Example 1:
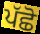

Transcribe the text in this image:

ਪੱਛੋ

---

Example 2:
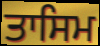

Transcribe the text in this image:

ਤਾਸਿਮ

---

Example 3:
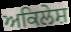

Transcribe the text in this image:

ਅਕਿਲੇਸ਼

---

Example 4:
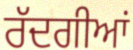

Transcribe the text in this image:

ਰੱਦਗੀਆਂ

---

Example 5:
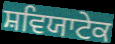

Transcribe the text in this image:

ਸ਼ਵਿਯਾਟੇਕ